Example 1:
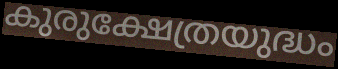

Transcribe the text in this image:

കുരുക്ഷേത്രയുദ്ധം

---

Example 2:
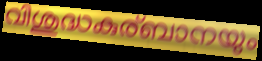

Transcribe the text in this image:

വിശുദ്ധകുര്ബാനയും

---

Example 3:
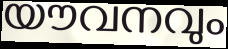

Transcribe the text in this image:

യൗവനവും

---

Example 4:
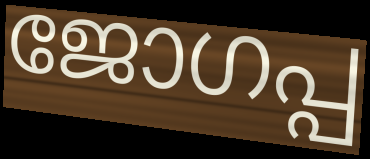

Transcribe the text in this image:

ജോഗപ്പ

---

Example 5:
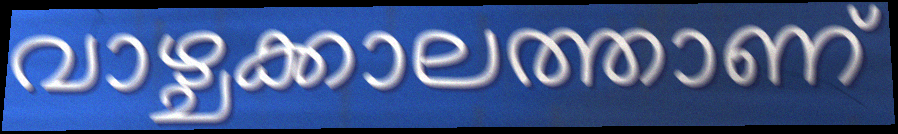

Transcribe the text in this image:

വാഴ്ചക്കാലത്താണ്